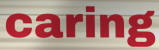
caring